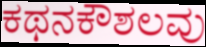
ಕಥನಕೌಶಲವು